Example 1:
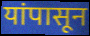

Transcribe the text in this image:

यांपासून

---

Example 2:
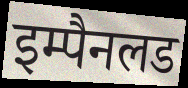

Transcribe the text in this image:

इम्पैनलड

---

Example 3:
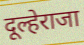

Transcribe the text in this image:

दूल्हेराजा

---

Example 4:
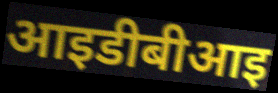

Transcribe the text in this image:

आइडीबीआइ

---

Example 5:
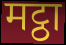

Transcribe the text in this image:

मट्ठा